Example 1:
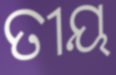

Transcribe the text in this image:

ତୀୟ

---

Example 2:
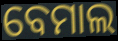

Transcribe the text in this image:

ବେମାଲ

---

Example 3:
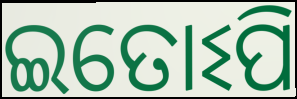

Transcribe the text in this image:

ଇତୋଽପି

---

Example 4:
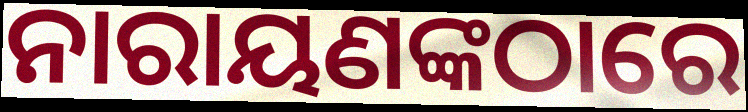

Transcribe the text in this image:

ନାରାୟଣଙ୍କଠାରେ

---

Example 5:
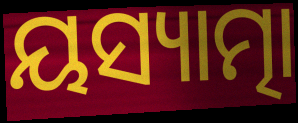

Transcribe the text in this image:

ୟସ୍ୟାତ୍ମା